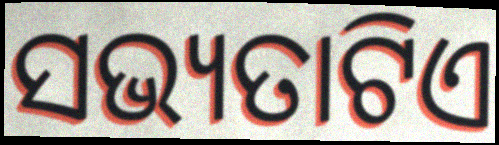
ସଭ୍ୟତାଟିଏ